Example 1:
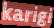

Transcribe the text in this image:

karigi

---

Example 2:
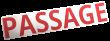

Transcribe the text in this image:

PASSAGE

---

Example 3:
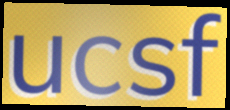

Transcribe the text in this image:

ucsf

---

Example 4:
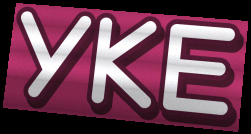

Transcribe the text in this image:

YKE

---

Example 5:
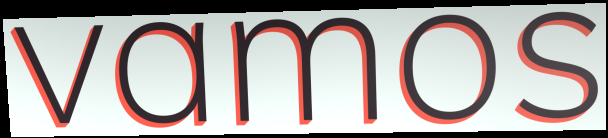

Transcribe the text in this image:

vamos